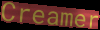
Creamer